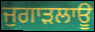
ਜੁਗਾੜਲਾਊ